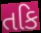
તકિ